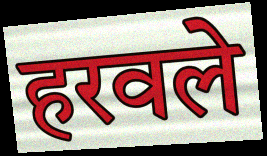
हरवले